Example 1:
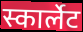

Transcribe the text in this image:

स्कार्लेट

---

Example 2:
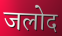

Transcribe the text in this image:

जलोद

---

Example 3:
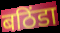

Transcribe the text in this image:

बठिंडा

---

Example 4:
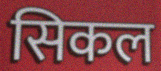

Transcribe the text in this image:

सिकल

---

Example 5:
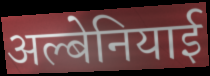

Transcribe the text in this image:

अल्बेनियाई